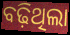
ବଢ଼ିଥିଲା